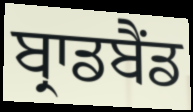
ਬ੍ਰਾਡਬੈਂਡ